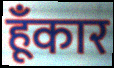
हूँकार